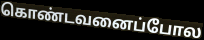
கொண்டவனைப்போல